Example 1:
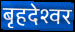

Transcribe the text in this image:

बृहदेश्वर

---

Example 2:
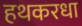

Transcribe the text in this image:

हथकरधा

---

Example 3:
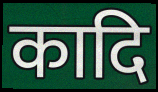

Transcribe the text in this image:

कादि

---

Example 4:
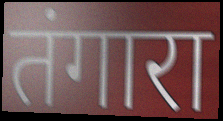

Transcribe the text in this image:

तंगारा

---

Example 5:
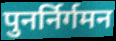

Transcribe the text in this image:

पुनर्निर्गमन